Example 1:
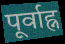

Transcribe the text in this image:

पूर्वाह्न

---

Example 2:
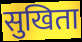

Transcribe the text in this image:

सुखिता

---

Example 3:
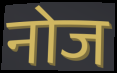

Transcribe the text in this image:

नोज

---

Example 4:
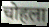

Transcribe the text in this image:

चोहला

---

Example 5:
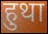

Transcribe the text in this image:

हुथा